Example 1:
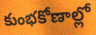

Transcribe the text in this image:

కుంభకోణాల్లో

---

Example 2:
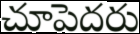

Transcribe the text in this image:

చూపెదరు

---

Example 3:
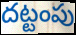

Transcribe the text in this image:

దట్టంపు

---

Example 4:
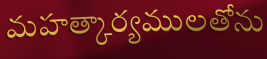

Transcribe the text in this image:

మహత్కార్యములతోను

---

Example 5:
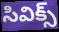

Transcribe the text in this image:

సివిక్స్